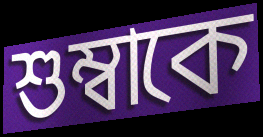
শুম্বাকে